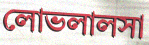
লোভলালসা